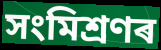
সংমিশ্ৰণৰ